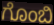
ಗೊಂಬಿ